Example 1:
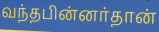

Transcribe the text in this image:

வந்தபின்னர்தான்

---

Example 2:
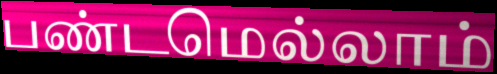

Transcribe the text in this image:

பண்டமெல்லாம்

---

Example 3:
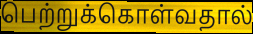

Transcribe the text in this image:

பெற்றுக்கொள்வதால்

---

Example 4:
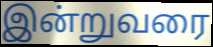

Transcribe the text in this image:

இன்றுவரை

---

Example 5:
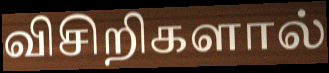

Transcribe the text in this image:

விசிறிகளால்